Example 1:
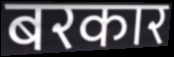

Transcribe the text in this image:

बरकार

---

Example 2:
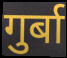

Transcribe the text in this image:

गुर्बा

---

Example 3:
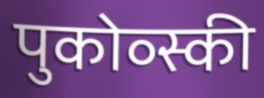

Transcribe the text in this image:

पुकोव्स्की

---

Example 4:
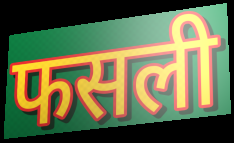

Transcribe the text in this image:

फसली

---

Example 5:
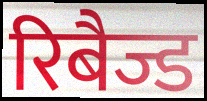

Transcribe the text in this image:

रिबैज्ड